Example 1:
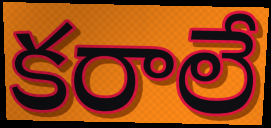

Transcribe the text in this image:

కరాలే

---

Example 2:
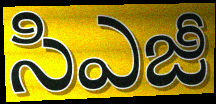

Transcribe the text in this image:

సిఎజీ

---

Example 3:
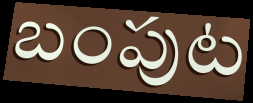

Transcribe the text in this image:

బంపుట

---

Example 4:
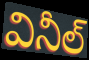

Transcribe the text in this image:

వినీల్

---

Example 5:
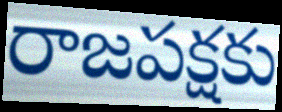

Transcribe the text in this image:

రాజపక్షకు